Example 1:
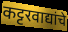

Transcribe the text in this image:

कट्टरवाद्यांचे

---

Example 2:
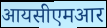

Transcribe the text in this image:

आयसीएमआर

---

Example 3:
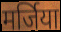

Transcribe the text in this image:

मर्जिया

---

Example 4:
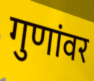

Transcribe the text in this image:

गुणांवर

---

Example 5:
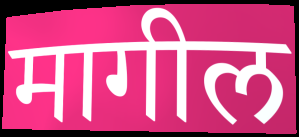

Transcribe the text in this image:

मागील